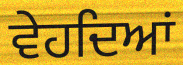
ਵੇਹਦਿਆਂ